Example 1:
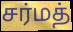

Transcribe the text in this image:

சர்மத்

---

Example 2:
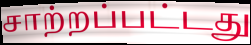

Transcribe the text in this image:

சாற்றப்பட்டது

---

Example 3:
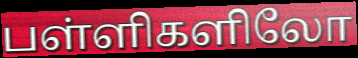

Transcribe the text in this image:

பள்ளிகளிலோ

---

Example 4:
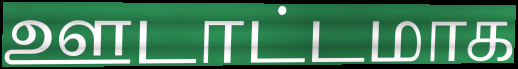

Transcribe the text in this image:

ஊடாட்டமாக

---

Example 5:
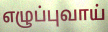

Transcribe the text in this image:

எழுப்புவாய்